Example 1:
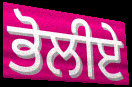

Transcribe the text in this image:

ਭੋਲੀਏ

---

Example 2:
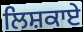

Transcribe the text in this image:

ਲਿਸ਼ਕਾਏ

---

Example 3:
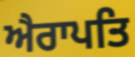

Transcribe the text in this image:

ਐਰਾਪਤਿ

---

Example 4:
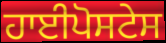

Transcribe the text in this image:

ਹਾਈਪੋਸਟੇਸ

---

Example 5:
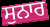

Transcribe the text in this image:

ਸੁਨਾਰ